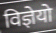
विज्ञेयो